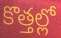
కొత్తల్లో